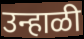
उन्हाळी